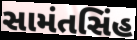
સામંતસિંહ